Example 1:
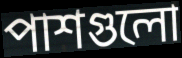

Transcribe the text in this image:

পাশগুলো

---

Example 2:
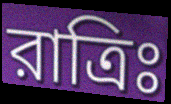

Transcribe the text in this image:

রাত্রিঃ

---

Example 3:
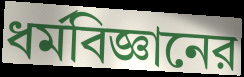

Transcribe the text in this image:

ধর্মবিজ্ঞানের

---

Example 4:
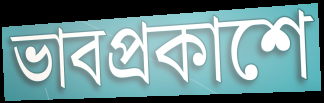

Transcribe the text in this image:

ভাবপ্রকাশে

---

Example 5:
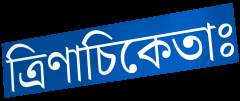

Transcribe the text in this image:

ত্রিণাচিকেতাঃ